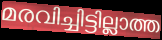
മരവിച്ചിട്ടില്ലാത്ത